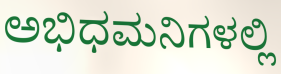
ಅಭಿಧಮನಿಗಳಲ್ಲಿ